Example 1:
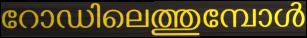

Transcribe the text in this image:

റോഡിലെത്തുമ്പോൾ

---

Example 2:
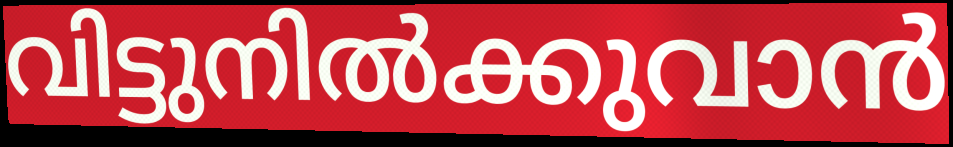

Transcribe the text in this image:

വിട്ടുനിൽക്കുവാൻ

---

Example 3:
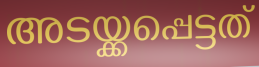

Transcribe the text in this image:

അടയ്ക്കപ്പെട്ടത്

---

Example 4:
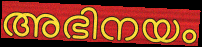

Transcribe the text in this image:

അഭിനയം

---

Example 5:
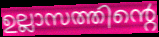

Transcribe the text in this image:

ഉല്ലാസത്തിന്റെ